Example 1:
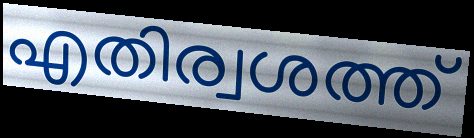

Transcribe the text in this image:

എതിര്വശത്ത്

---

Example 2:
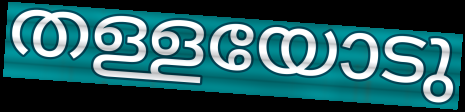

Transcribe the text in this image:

തള്ളയോടു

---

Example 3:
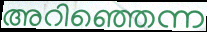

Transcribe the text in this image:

അറിഞ്ഞെന്ന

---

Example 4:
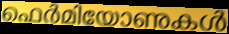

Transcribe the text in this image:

ഫെർമിയോണുകൾ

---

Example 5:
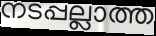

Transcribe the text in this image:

നടപ്പല്ലാത്ത